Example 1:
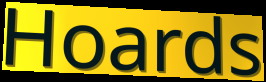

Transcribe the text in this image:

Hoards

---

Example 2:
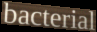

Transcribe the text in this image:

bacterial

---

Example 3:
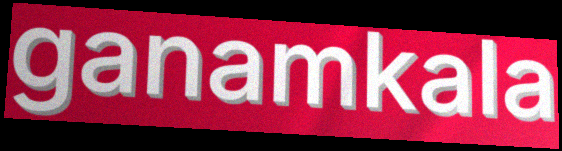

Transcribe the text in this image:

ganamkala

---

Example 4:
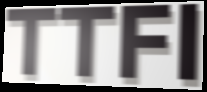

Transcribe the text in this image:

TTFI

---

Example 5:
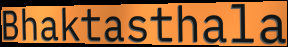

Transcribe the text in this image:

Bhaktasthala